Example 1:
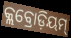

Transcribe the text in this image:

କ୍ଲବ୍ରୋଡ଼ିୟମ୍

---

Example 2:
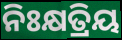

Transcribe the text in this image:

ନିଃକ୍ଷତ୍ରିୟ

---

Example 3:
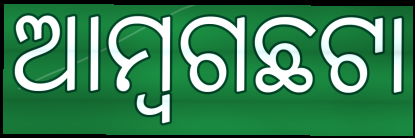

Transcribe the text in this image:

ଆମ୍ବଗଛଟା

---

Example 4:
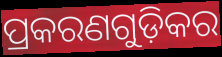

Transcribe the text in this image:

ପ୍ରକରଣଗୁଡ଼ିକର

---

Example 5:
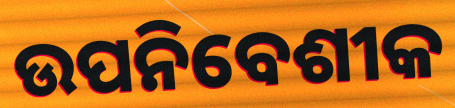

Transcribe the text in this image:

ଉପନିବେଶୀକ